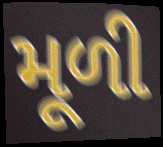
મૂળી